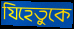
যিহেতুকে